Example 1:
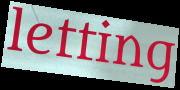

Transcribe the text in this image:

letting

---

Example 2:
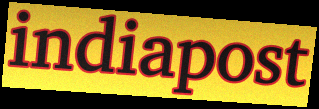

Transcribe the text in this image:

indiapost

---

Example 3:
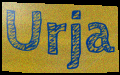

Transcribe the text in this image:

Urja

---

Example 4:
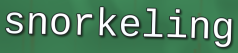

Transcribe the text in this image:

snorkeling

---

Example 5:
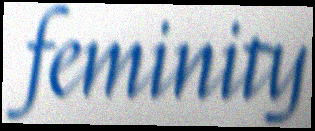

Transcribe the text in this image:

feminity